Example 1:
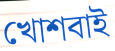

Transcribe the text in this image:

খোশবাই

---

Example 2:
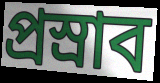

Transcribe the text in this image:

প্রস্রাব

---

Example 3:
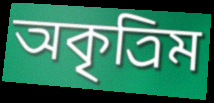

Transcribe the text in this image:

অকৃত্রিম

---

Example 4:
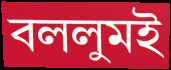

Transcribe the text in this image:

বললুমই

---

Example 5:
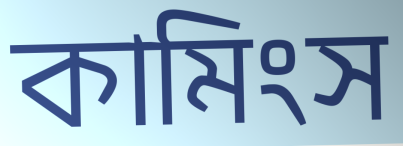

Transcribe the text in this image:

কামিংস